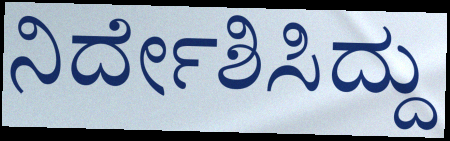
ನಿರ್ದೇಶಿಸಿದ್ದು